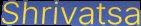
Shrivatsa